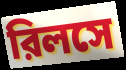
রিলসে